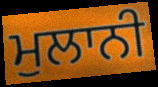
ਮੁਲਾਨੀ